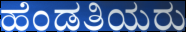
ಹೆಂಡತಿಯರು